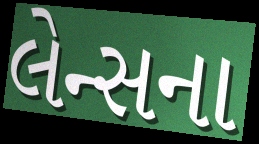
લેન્સના